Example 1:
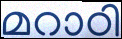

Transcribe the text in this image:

മറാഠി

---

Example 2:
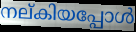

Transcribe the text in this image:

നല്കിയപ്പോൾ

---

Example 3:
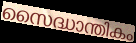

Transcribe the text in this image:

സൈദ്ധാന്തികം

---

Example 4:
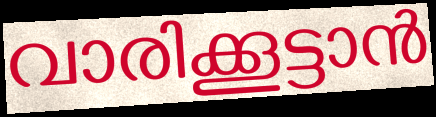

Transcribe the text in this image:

വാരിക്കൂട്ടാൻ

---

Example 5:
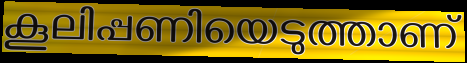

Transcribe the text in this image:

കൂലിപ്പണിയെടുത്താണ്